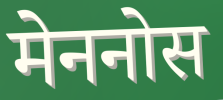
मेननोस